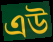
এউ